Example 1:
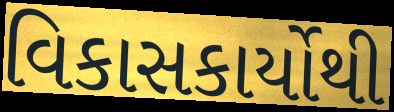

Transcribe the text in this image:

વિકાસકાર્યોથી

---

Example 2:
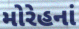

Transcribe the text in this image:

મોરેહનાં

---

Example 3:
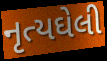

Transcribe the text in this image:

નૃત્યઘેલી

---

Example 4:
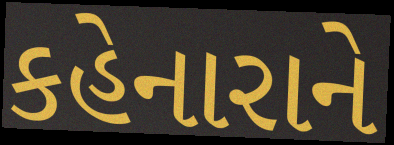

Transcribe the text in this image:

કહેનારાને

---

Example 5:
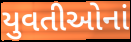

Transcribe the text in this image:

યુવતીઓનાં